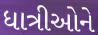
ધાત્રીઓને